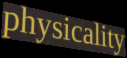
physicality